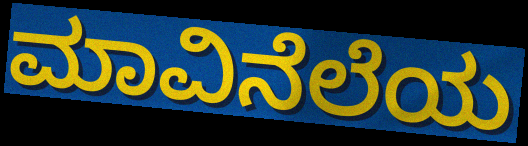
ಮಾವಿನೆಲೆಯ